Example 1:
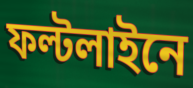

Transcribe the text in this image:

ফল্টলাইনে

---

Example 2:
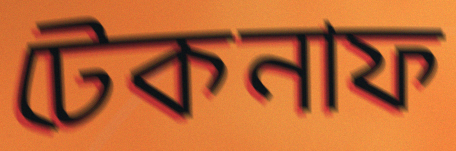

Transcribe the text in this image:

টেকনাফ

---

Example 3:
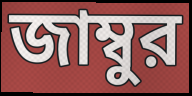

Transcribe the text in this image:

জাম্বুর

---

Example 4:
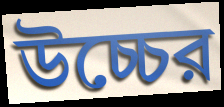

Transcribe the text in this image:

উচ্চের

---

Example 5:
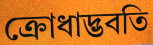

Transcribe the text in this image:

ক্রোধাদ্ভবতি